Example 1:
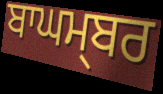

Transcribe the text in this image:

ਬਾਘਮ੍ਬਰ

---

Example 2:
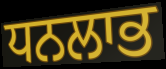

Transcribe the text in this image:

ਧਨਲਾਭ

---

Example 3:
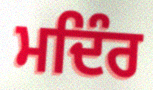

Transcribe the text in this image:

ਮਦਿੰਰ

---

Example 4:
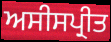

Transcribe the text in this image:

ਅਸੀਸਪ੍ਰੀਤ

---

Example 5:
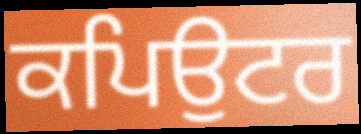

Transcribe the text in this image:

ਕਪਿਉਟਰ